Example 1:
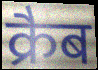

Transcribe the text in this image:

क्रैब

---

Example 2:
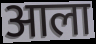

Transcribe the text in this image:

आला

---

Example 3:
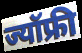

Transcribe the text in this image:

ज्यॉफ्री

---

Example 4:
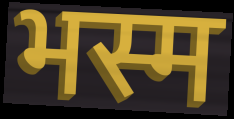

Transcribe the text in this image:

भस्म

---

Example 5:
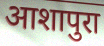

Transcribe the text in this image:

आशापुरा